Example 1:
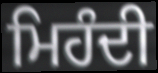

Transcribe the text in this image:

ਮਿਹੰਦੀ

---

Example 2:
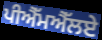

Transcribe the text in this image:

ਪੀਐੱਮਐੱਲਏ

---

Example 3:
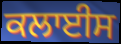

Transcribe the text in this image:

ਕਲਾਈਸ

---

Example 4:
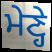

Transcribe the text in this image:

ਮੇਣ੍ਹੇ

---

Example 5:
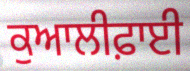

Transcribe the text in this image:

ਕੁਆਲੀਫ਼ਾਈ